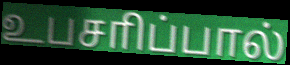
உபசரிப்பால்